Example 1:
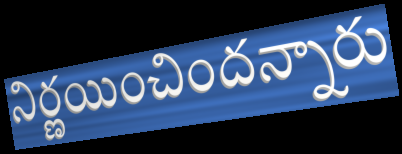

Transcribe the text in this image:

నిర్ణయించిందన్నారు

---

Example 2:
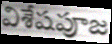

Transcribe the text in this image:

విశేషపూజ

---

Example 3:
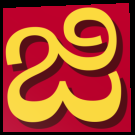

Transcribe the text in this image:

జి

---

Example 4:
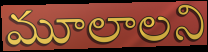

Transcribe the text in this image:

మూలాలని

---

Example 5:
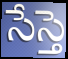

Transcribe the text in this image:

సేస్తె